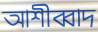
আশীব্বাদ